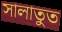
সালাতুত